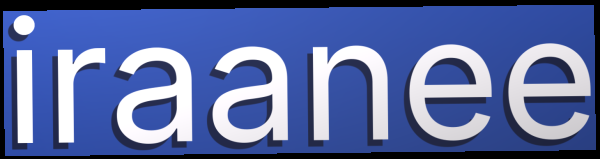
iraanee